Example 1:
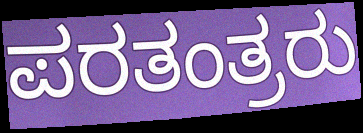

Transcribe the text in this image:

ಪರತಂತ್ರರು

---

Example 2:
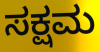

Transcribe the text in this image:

ಸಕ್ಷಮ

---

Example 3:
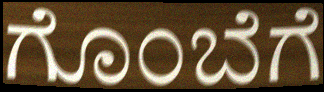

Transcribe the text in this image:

ಗೊಂಬೆಗೆ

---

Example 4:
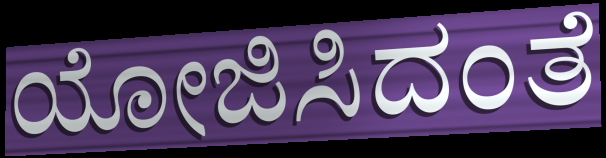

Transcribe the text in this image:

ಯೋಜಿಸಿದಂತೆ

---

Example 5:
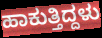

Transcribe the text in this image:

ಹಾಕುತ್ತಿದ್ದಳು